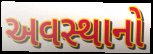
અવસ્થાનો